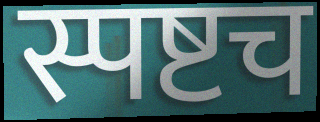
स्पष्टच